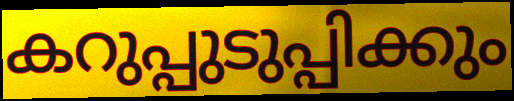
കറുപ്പുടുപ്പിക്കും